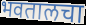
भवतालचा